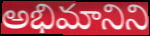
అభిమానిని